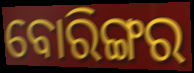
ବୋରିଙ୍ଗର